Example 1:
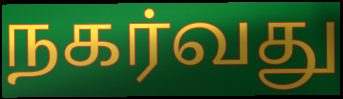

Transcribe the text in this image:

நகர்வது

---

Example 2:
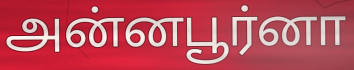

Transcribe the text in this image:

அன்னபூர்னா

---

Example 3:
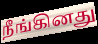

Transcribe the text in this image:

நீங்கினது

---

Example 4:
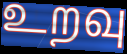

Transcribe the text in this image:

உறவு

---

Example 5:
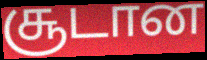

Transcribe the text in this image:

சூடான